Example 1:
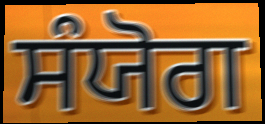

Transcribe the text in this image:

ਸੰਯੋਗ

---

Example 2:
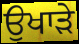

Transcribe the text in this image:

ਉਖਾੜੇ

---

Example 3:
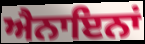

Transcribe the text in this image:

ਐਨਾਇਨਾਂ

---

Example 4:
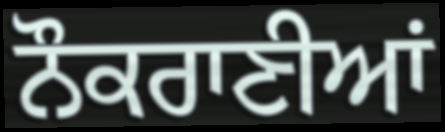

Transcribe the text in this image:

ਨੌਕਰਾਣੀਆਂ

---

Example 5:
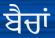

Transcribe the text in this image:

ਬੈਚਾਂ